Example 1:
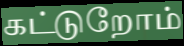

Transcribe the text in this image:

கட்டுறோம்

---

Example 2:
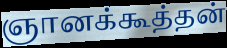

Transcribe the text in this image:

ஞானக்கூத்தன்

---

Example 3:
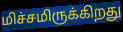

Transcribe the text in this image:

மிச்சமிருக்கிறது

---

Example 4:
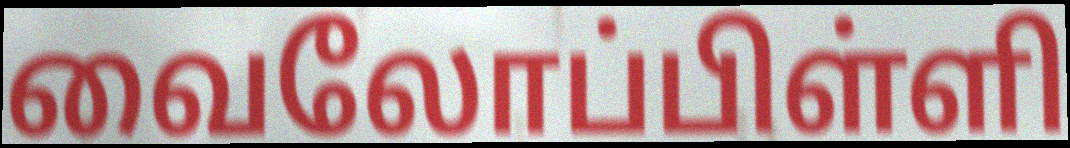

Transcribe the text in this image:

வைலோப்பிள்ளி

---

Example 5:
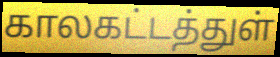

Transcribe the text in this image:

காலகட்டத்துள்